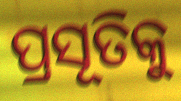
ପ୍ରସୂତିକୁ